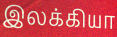
இலக்கியா